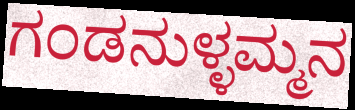
ಗಂಡನುಳ್ಳಮ್ಮನ